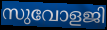
സുവോളജി